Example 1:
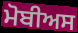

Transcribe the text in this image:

ਮੋਬੀਅਸ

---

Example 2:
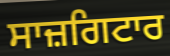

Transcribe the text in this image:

ਸਾਜ਼ਗਿਟਾਰ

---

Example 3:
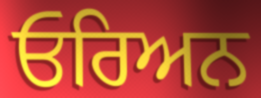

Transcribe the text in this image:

ਓਰਿਅਨ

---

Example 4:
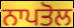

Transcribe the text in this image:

ਨਾਪਤੋਲ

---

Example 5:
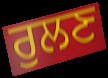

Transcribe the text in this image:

ਰੁਲਣ